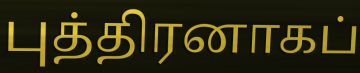
புத்திரனாகப்